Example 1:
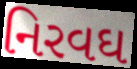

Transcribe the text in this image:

નિરવઘ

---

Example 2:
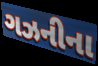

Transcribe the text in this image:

ગઝનીના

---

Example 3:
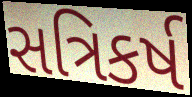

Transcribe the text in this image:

સત્રિકર્ષ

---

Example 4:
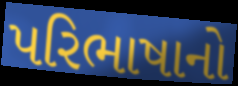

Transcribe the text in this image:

પરિભાષાનો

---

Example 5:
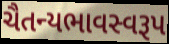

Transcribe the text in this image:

ચૈતન્યભાવસ્વરૂપ